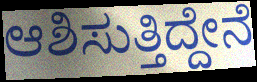
ಆಶಿಸುತ್ತಿದ್ದೇನೆ